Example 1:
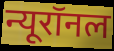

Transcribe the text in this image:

न्यूरॉनल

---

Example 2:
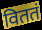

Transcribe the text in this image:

विततं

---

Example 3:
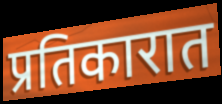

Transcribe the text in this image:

प्रतिकारात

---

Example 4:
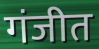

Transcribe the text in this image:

गंजीत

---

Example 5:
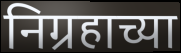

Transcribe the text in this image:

निग्रहाच्या